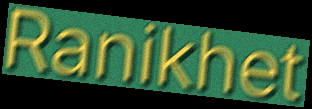
Ranikhet